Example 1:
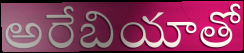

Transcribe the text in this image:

అరేబియాతో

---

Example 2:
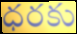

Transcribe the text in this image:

ధరకు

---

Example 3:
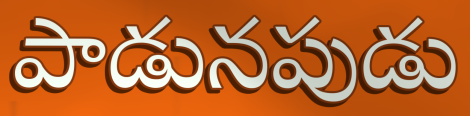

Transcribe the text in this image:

పాడునపుడు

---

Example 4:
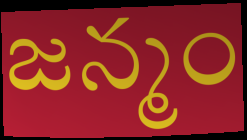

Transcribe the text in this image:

జన్మం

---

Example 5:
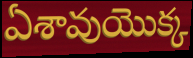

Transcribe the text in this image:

ఏశావుయొక్క